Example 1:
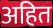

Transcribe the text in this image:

अहित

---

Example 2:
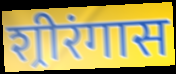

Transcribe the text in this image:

श्रीरंगास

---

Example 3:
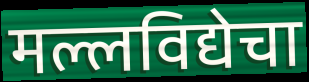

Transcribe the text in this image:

मल्लविद्येचा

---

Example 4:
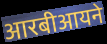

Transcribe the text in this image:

आरबीआयने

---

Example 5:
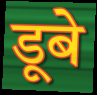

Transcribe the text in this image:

डूबे